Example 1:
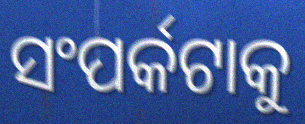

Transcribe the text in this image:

ସଂପର୍କଟାକୁ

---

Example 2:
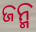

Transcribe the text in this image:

ଜନ୍ମ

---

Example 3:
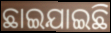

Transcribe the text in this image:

ଛାଇଯାଇଛି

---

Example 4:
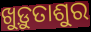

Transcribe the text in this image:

ଖୁଡ଼ୁତାଶୁର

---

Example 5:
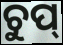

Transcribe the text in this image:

ଚୁପ୍